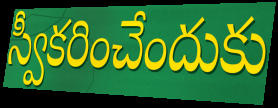
స్వీకరించేందుకు